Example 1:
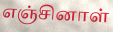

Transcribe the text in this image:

எஞ்சினாள்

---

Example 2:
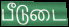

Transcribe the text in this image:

பீடுடை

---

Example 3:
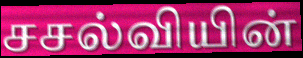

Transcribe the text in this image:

சசல்வியின்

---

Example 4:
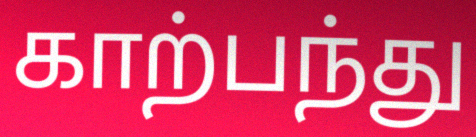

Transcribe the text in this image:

காற்பந்து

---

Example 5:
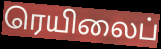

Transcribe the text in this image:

ரெயிலைப்